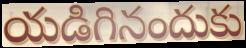
యడిగినందుకు